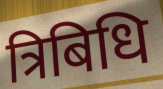
त्रिबिधि